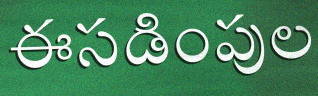
ఈసడింపుల